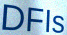
DFIs